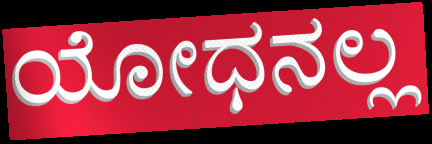
ಯೋಧನಲ್ಲ